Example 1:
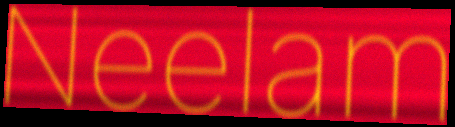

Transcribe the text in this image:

Neelam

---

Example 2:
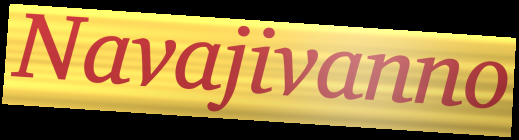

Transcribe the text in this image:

Navajivanno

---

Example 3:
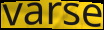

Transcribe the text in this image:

varse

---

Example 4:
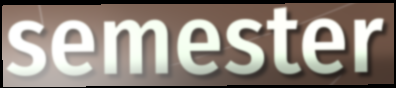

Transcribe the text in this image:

semester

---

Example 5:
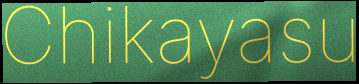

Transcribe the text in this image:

Chikayasu